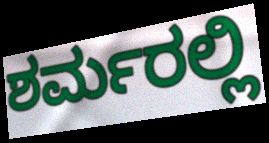
ಶರ್ಮರಲ್ಲಿ